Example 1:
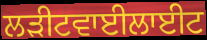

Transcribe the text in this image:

ਲੜੀਟਵਾਈਲਾਈਟ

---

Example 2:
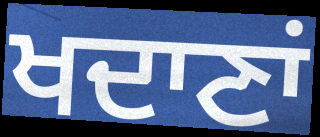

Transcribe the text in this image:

ਖਦਾਣਾਂ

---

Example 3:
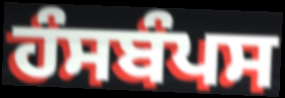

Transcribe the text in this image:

ਹੰਸਬੰਪਸ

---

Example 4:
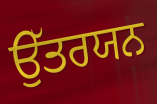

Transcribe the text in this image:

ਉੱਤਰਯਨ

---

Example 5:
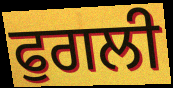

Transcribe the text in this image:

ਫੁਗਲੀ